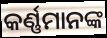
କର୍ଣ୍ଣମାନଙ୍କ